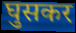
घुसकर